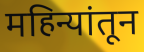
महिन्यांतून